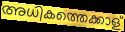
അധികത്തെക്കാള്